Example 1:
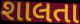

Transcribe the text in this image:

શાલતા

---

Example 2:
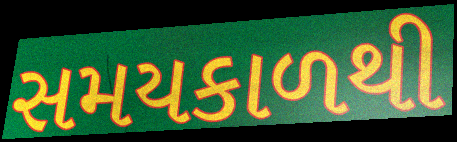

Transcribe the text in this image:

સમયકાળથી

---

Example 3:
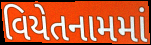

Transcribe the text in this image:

વિયેતનામમાં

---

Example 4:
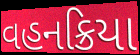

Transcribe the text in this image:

વહનક્રિયા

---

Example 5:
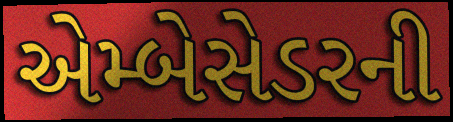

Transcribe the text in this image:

એમ્બેસેડરની